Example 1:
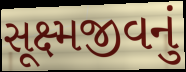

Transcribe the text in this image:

સૂક્ષ્મજીવનું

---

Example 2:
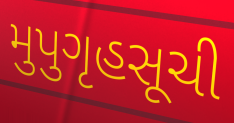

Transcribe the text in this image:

મુપુગૃહસૂચી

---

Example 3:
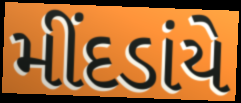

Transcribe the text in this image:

મીંદડાંયે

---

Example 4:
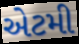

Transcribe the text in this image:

એટમી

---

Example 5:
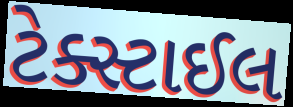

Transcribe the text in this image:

ટેક્સ્ટાઈલ